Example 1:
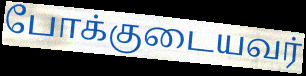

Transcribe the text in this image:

போக்குடையவர்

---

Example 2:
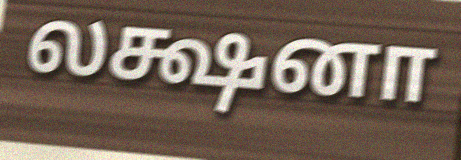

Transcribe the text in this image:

லக்ஷனா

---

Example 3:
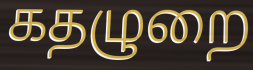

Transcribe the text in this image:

கதழுறை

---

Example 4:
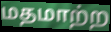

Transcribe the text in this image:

மதமாற்ற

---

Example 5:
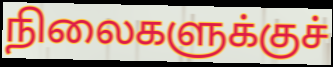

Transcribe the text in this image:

நிலைகளுக்குச்